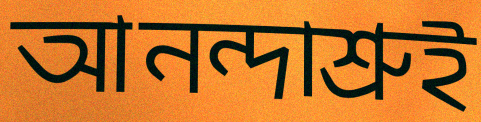
আনন্দাশ্রুই